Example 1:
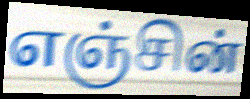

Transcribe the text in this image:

எஞ்சின்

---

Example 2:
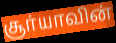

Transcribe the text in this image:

சூர்யாவின்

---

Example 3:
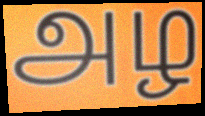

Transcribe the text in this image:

அழ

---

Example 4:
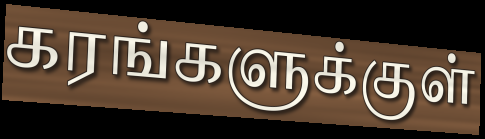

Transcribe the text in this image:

கரங்களுக்குள்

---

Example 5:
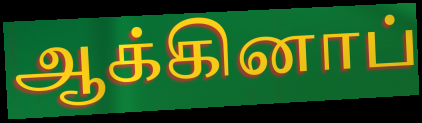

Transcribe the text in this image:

ஆக்கினாப்